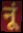
नूं